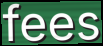
fees